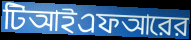
টিআইএফআরের